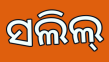
ସଲିଲ୍